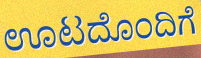
ಊಟದೊಂದಿಗೆ